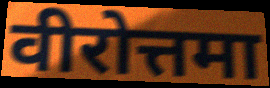
वीरोत्तमा